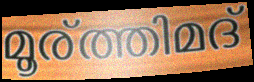
മൂര്ത്തിമദ്